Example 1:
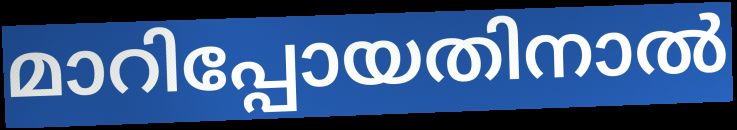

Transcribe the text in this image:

മാറിപ്പോയതിനാൽ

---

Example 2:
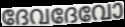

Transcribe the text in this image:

ദേവദേവോ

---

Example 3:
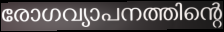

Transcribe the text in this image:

രോഗവ്യാപനത്തിന്റെ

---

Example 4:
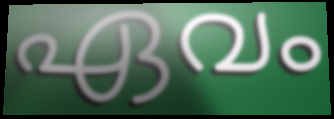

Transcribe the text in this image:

ഏവം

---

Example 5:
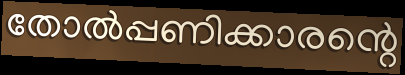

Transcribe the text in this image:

തോൽപ്പണിക്കാരന്റെ